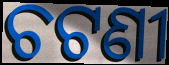
ଚଟଣୀ